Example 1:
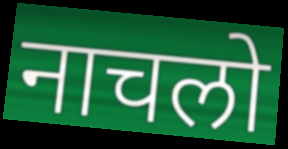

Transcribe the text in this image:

नाचलो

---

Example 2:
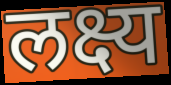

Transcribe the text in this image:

लक्ष्य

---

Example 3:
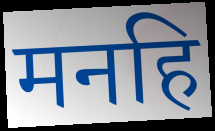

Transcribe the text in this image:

मनहि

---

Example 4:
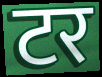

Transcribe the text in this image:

टर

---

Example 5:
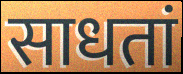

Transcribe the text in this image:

साधतां